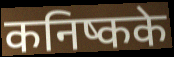
कनिष्कके